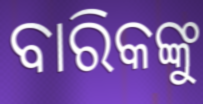
ବାରିକଙ୍କୁ